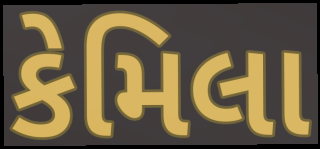
કેમિલા